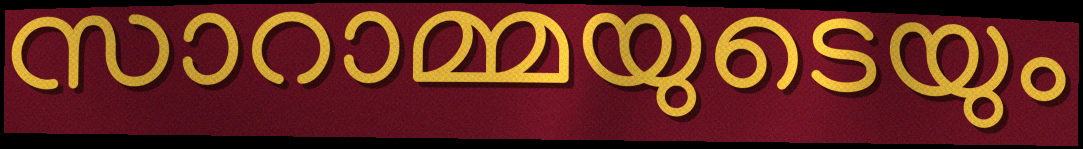
സാറാമ്മയുടെയും